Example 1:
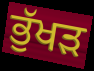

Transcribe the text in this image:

ਭੁੱਖੜ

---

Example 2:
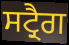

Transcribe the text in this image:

ਸਟ੍ਰੈਗ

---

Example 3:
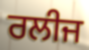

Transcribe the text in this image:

ਰਲੀਜ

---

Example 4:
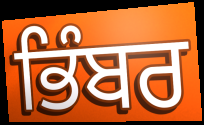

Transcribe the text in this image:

ਭਿੰਬਰ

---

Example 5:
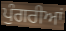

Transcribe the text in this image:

ਪੁੰਗਰੀਆਂ